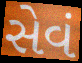
સેવં